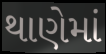
થાણેમાં